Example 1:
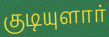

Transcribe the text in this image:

குடியுளார்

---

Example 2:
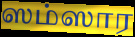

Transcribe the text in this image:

ஸம்ஸார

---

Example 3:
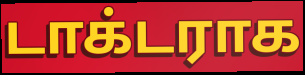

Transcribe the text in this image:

டாக்டராக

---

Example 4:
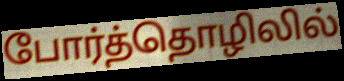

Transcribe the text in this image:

போர்த்தொழிலில்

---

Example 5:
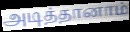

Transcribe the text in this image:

அடித்தானாம்